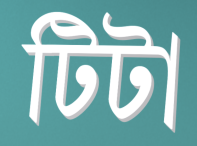
টিটা